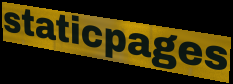
staticpages